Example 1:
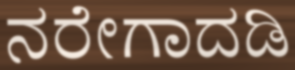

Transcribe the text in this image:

ನರೇಗಾದಡಿ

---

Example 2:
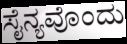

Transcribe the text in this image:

ಸೈನ್ಯವೊಂದು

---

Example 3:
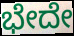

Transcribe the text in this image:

ಭೇದೇ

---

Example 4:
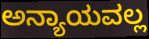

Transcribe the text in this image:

ಅನ್ಯಾಯವಲ್ಲ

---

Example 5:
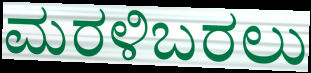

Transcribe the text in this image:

ಮರಳಿಬರಲು